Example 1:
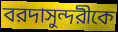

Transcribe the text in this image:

বরদাসুন্দরীকে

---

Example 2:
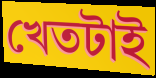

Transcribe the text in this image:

খেতটাই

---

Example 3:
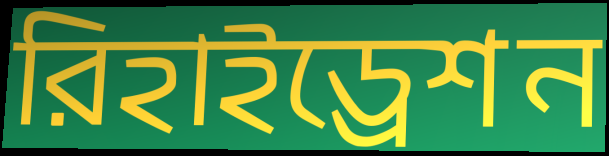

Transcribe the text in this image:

রিহাইড্রেশন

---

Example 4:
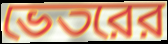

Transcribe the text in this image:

ভেতরের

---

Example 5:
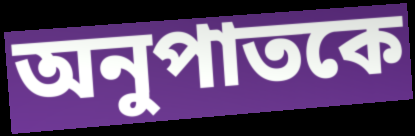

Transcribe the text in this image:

অনুপাতকে